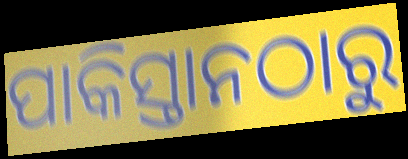
ପାକିସ୍ତାନଠାରୁ